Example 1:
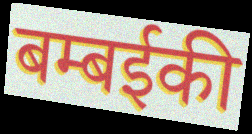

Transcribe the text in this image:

बम्बईकी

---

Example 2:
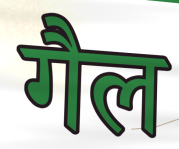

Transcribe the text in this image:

गैल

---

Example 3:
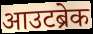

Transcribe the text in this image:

आउटब्रेक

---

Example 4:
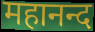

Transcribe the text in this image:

महानन्द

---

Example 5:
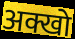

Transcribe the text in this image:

अक्खो